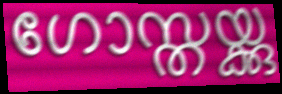
ഗോസ്തയ്ക്കു